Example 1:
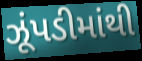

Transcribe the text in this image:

ઝૂંપડીમાંથી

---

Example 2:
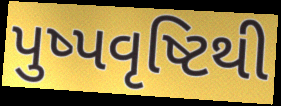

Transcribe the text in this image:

પુષ્પવૃષ્ટિથી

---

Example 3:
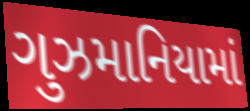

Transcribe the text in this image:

ગુઝમાનિયામાં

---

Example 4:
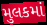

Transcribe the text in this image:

મુલકમાં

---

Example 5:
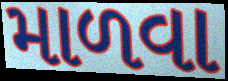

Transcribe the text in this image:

માળવા